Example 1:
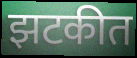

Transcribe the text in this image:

झटकीत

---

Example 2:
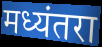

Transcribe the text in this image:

मध्यंतरा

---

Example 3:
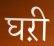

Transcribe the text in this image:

घऱी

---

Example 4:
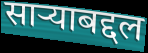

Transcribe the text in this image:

साऱ्याबद्दल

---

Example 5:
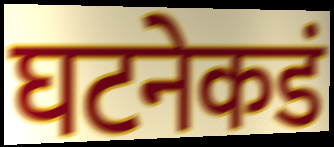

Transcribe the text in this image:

घटनेकडं